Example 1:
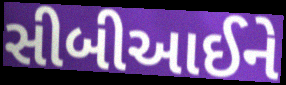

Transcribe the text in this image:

સીબીઆઈને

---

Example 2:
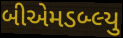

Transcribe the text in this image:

બીએમડબ્લ્યુ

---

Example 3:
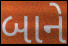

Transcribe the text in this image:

બાને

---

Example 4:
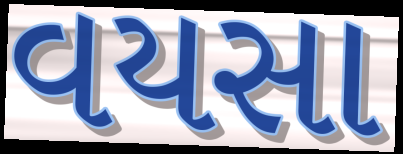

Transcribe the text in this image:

વયસા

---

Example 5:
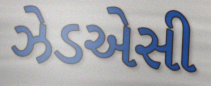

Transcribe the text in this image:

ઝેડએસી